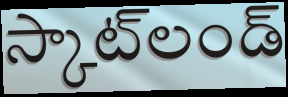
స్కాట్‌లండ్